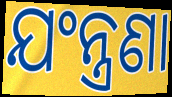
ଯଂନ୍ତ୍ରଣା